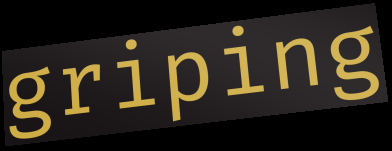
griping